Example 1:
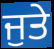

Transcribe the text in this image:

ਜੁਤੇ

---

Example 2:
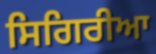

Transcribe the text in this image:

ਸਿਗਿਰੀਆ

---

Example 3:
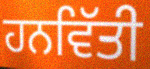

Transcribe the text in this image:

ਹਨਵਿੱਤੀ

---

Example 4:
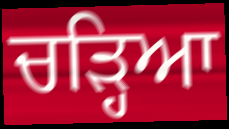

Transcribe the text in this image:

ਚੜ੍ਹਿਆ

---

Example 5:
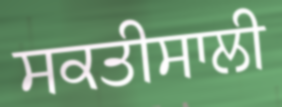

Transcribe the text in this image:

ਸਕਤੀਸਾਲੀ